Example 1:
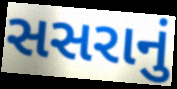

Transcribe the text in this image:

સસરાનું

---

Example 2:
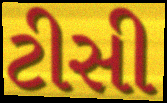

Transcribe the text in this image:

ટીસી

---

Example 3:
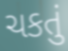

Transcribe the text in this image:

ચકતું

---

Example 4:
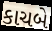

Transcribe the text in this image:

કાચબે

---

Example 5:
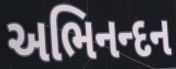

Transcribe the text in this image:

અભિનન્દન